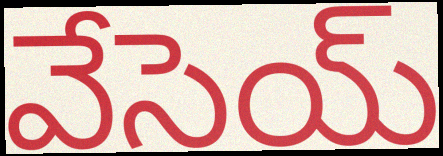
వేసెయ్